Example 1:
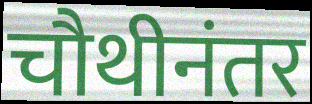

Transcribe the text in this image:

चौथीनंतर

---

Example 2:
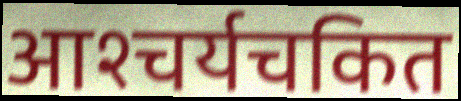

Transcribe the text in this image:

आश्चर्यचकित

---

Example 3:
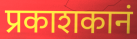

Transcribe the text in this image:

प्रकाशकानं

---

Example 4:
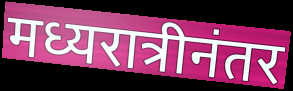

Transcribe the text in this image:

मध्यरात्रीनंतर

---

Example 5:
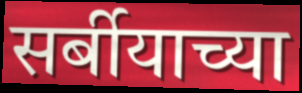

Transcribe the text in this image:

सर्बीयाच्या